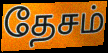
தேசம்